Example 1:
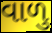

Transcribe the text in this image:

વાળુ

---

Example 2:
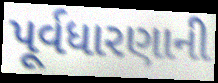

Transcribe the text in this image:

પૂર્વધારણાની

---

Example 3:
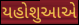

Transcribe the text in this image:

યહોશુઆએ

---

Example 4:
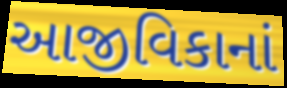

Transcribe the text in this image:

આજીવિકાનાં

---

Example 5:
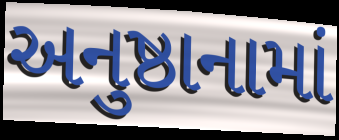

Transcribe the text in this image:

અનુષ્ઠાનામાં